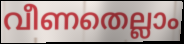
വീണതെല്ലാം